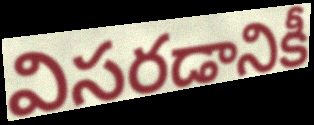
విసరడానికీ